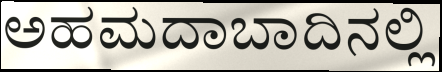
ಅಹಮದಾಬಾದಿನಲ್ಲಿ